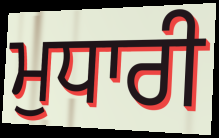
ਮੁਧਾਰੀ